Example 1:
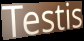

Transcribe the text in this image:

Testis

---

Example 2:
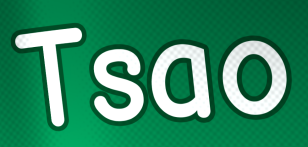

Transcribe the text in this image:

Tsao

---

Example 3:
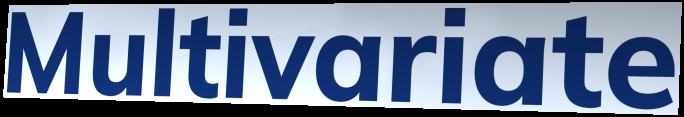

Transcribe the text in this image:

Multivariate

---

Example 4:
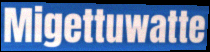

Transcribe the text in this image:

Migettuwatte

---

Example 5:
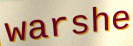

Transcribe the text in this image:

warshe